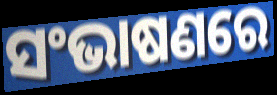
ସଂଭାଷଣରେ